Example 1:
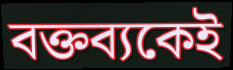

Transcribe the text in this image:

বক্তব্যকেই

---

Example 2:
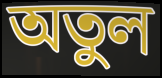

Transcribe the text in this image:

অতুল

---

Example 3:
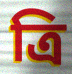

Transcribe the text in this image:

ত্রি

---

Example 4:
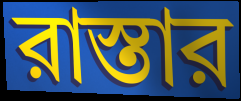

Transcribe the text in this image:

রাস্তার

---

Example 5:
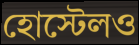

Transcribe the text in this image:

হোস্টেলও